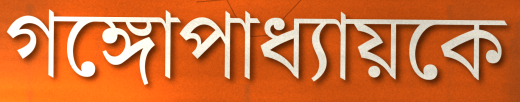
গঙ্গোপাধ্যায়কে